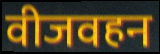
वीजवहन